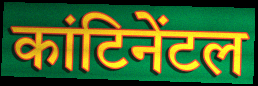
कांटिनेंटल